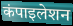
कंपाइलेशन